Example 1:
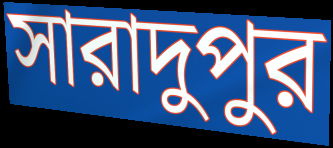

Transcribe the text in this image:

সারাদুপুর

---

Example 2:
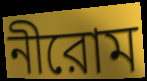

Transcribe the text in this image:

নীরোম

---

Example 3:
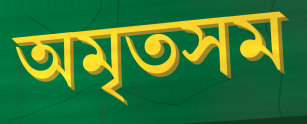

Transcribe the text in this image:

অমৃতসম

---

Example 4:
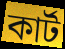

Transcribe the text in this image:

কার্ট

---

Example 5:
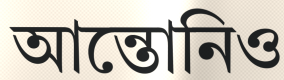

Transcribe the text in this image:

আন্তোনিও